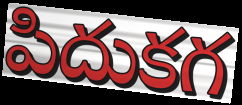
పిదుకగ